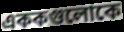
এককগুলোকে